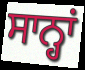
ਸਾਨ੍ਹਾਂ